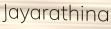
Jayarathina